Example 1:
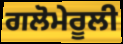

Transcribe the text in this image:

ਗਲੋਮੇਰੂਲੀ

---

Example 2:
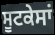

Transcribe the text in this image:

ਸੂਟਕੇਸਾਂ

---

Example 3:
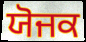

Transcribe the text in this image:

ਯੋਜਕ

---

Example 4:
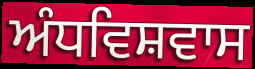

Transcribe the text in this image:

ਅੰਧਵਿਸ਼ਵਾਸ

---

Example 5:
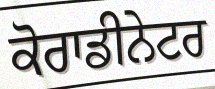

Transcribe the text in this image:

ਕੋਰਾਡੀਨੇਟਰ